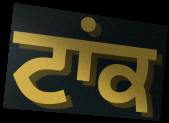
ਟਾਂਕ